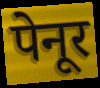
पेनूर